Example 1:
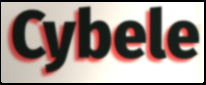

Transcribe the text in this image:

Cybele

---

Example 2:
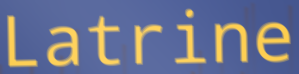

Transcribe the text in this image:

Latrine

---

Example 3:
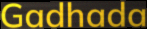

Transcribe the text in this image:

Gadhada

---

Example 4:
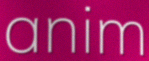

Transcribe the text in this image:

anim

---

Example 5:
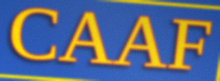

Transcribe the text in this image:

CAAF